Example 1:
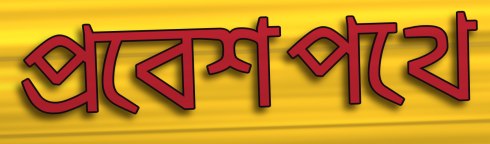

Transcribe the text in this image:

প্রবেশপথে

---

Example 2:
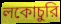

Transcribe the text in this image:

লকোচুরি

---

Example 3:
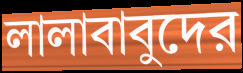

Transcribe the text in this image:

লালাবাবুদের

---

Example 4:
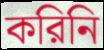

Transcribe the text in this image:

করিনি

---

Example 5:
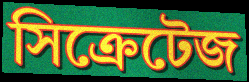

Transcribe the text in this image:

সিক্রেটেজ